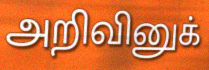
அறிவினுக்